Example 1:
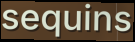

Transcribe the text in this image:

sequins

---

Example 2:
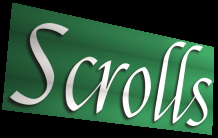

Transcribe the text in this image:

Scrolls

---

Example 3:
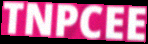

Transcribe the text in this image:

TNPCEE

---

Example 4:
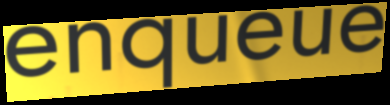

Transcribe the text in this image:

enqueue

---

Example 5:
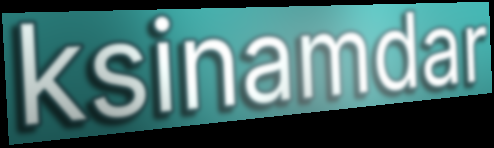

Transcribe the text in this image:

ksinamdar